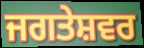
ਜਗਤੇਸ਼ਵਰ